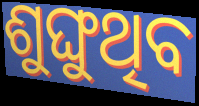
ଶୁଙ୍ଘୁଥିବ